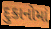
દુકાનોમાં